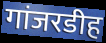
गांजरडीह